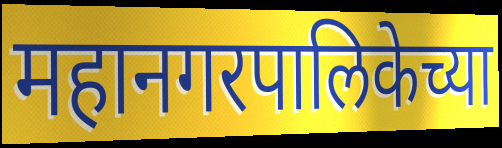
महानगरपालिकेच्या